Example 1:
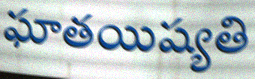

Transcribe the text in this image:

ఘాతయిష్యతి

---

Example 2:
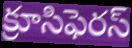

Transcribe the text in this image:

క్రూసిఫెరస్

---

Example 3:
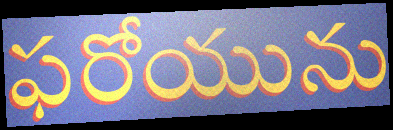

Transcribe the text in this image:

ఫరోయును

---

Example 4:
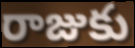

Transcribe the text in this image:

రాజుకు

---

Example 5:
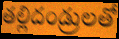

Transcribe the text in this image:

తల్లిదండ్రులతో